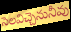
సెలవిచ్చెనునీవు